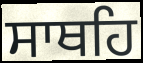
ਸਾਥਹਿ